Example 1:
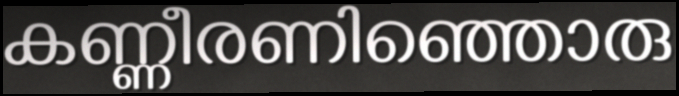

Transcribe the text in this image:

കണ്ണീരണിഞ്ഞൊരു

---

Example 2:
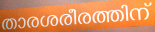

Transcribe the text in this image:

താരശരീരത്തിന്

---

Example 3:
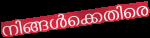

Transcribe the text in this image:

നിങ്ങൾക്കെതിരെ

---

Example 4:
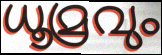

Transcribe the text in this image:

ധൂമ്രവും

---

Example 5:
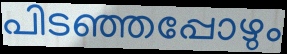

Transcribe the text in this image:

പിടഞ്ഞപ്പോഴും